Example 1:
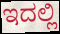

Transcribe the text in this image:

ಇದಲ್ಲಿ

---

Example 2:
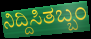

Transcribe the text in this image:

ನಿದ್ದಿಸಿತಬ್ಬಂ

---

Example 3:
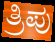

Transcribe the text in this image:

ತ್ರಿಪು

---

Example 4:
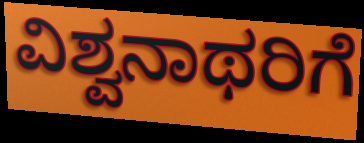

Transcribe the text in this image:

ವಿಶ್ವನಾಥರಿಗೆ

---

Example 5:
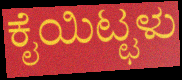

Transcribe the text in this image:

ಕೈಯಿಟ್ಟಳು